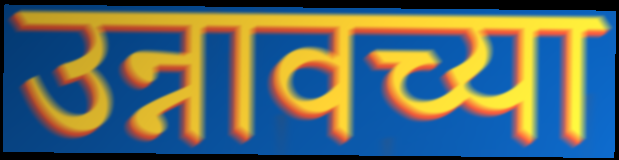
उन्नावच्या